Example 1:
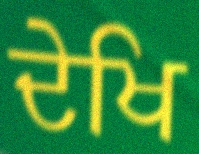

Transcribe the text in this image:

ਦੇਖਿ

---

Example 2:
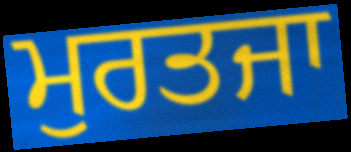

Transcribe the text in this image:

ਮੁਰਤਜਾ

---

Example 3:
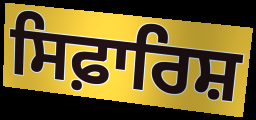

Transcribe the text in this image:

ਸਿਫ਼ਾਰਿਸ਼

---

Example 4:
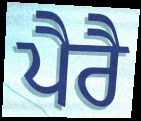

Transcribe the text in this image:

ਪੈਰੈ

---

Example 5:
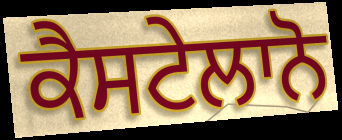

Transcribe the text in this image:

ਕੈਸਟੇਲਾਨੋ